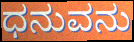
ಧನುವನು